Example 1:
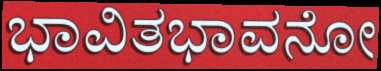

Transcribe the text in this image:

ಭಾವಿತಭಾವನೋ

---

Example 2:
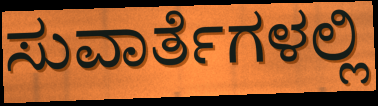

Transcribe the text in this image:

ಸುವಾರ್ತೆಗಳಲ್ಲಿ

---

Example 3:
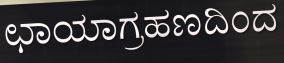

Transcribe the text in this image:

ಛಾಯಾಗ್ರಹಣದಿಂದ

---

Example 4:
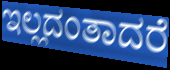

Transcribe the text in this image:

ಇಲ್ಲದಂತಾದರೆ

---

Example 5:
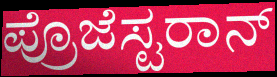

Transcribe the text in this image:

ಪ್ರೊಜೆಸ್ಟರಾನ್